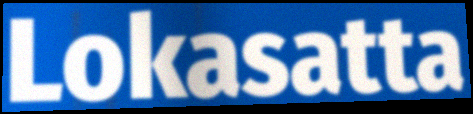
Lokasatta